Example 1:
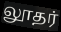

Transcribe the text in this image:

லூதர்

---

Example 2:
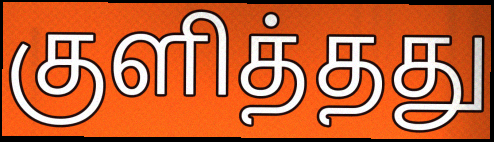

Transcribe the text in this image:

குளித்தது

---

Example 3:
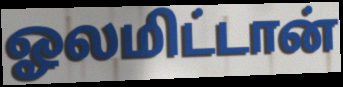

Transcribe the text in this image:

ஓலமிட்டான்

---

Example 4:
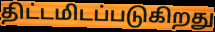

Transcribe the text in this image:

திட்டமிடப்படுகிறது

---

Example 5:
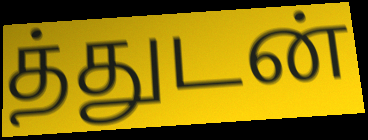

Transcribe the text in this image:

த்துடன்